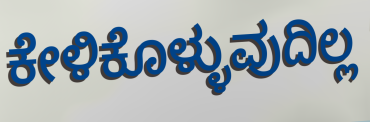
ಕೇಳಿಕೊಳ್ಳುವುದಿಲ್ಲ